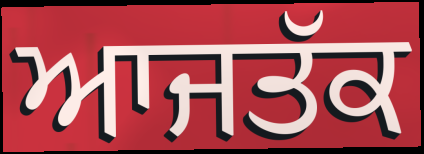
ਆਜਤੱਕ